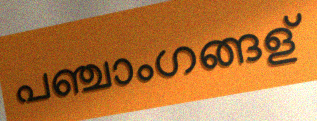
പഞ്ചാംഗങ്ങള്